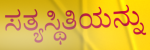
ಸತ್ಯಸ್ಥಿತಿಯನ್ನು